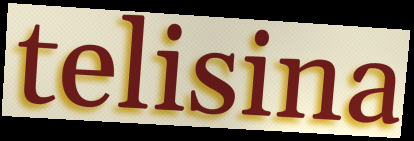
telisina